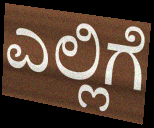
ಎಲ್ಲಿಗೆ